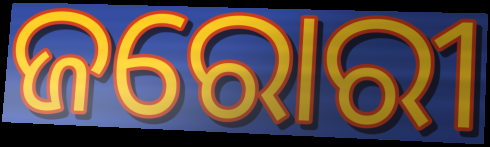
ଜରୋରୀ